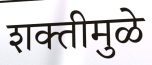
शक्तीमुळे